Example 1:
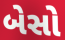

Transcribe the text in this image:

બેસો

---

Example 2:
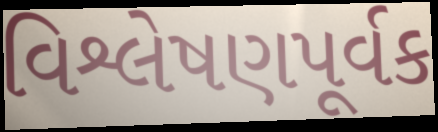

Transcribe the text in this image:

વિશ્લેષણપૂર્વક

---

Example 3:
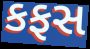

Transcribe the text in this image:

કફસ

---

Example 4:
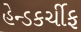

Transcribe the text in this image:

હેન્ડકર્ચીફ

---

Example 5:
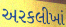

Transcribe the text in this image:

અરકલીખાં